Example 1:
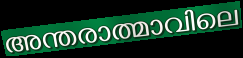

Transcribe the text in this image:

അന്തരാത്മാവിലെ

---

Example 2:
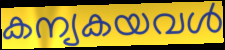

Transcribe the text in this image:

കന്യകയവൾ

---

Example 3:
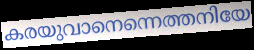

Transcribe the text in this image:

കരയുവാനെന്നെത്തനിയേ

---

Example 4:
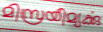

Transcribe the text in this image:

മിസ്രയീമ്യൎക്കു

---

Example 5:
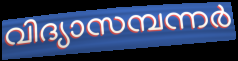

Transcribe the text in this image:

വിദ്യാസമ്പന്നർ